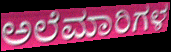
ಅಲೆಮಾರಿಗಳ